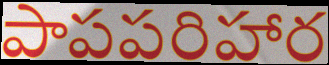
పాపపరిహార